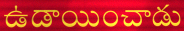
ఉడాయించాడు